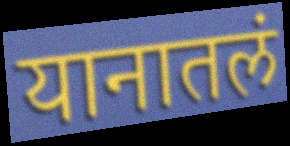
यानातलं